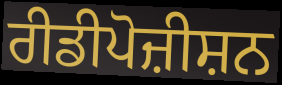
ਰੀਡੀਪੋਜ਼ੀਸ਼ਨ